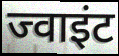
ज्वाइंट